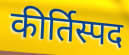
कीर्तिस्पद